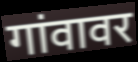
गांवावर